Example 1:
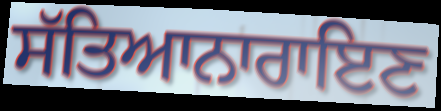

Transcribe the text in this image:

ਸੱਤਿਆਨਾਰਾਇਣ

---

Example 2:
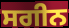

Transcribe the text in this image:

ਸਗੀਨ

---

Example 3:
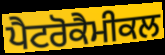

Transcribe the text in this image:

ਪੈਟਰੋਕੈਮੀਕਲ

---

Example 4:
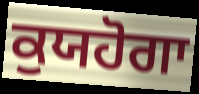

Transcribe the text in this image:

ਕੁਯਹੋਗਾ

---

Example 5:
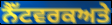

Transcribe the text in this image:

ਨੈੱਟਵਰਕਅਤੇ